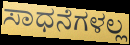
ಸಾಧನೆಗಳಲ್ಲ